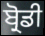
ਬ੍ਰੋਡੀ